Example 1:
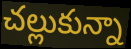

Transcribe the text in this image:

చల్లుకున్నా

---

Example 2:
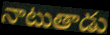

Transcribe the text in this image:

నాటుతాడు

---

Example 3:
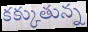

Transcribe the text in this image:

కక్కుతున్న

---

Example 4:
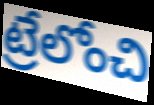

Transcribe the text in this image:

ట్రేలోంచి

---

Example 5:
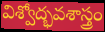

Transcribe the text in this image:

విశ్వోద్భవశాస్త్రం